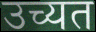
उच्यत